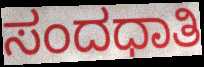
ಸಂದಧಾತಿ